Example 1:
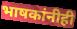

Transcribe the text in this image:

भाषकांनीही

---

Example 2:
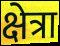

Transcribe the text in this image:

क्षेत्रा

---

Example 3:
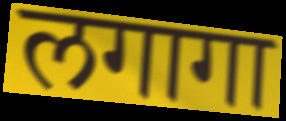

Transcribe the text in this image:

लगागा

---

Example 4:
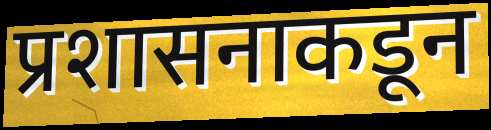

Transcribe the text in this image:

प्रशासनाकडून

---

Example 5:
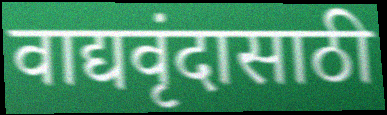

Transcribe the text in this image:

वाद्यवृंदासाठी